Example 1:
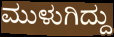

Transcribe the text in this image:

ಮುಳುಗಿದ್ದು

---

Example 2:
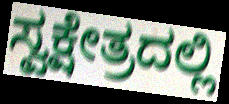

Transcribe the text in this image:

ಸ್ವಕ್ಷೇತ್ರದಲ್ಲಿ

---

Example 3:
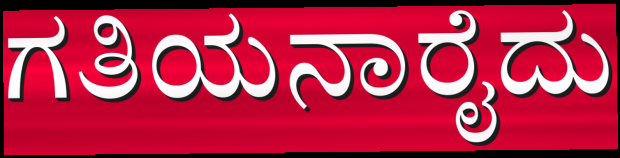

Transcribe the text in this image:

ಗತಿಯನಾರೈದು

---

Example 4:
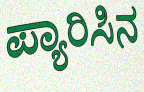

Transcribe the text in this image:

ಪ್ಯಾರಿಸಿನ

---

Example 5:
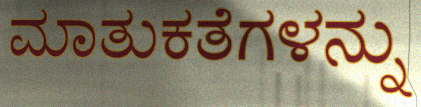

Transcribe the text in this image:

ಮಾತುಕತೆಗಳನ್ನು